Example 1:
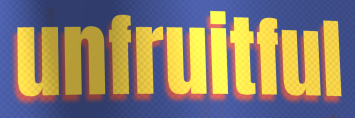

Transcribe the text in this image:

unfruitful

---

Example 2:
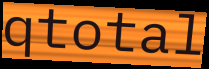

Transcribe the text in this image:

qtotal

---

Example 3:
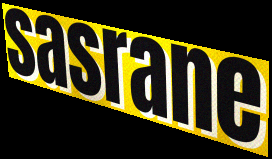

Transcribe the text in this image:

sasrane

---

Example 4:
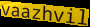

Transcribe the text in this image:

vaazhvil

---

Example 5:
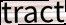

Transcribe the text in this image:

tract